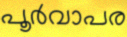
പൂർവാപര